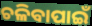
ଚଳିବାପାଇଁ